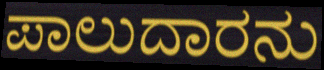
ಪಾಲುದಾರನು